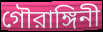
গৌরাঙ্গিনী